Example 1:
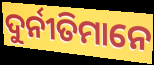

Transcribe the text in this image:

ଦୁର୍ନୀତିମାନେ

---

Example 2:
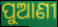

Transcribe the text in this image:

ପୁଆଣୀ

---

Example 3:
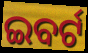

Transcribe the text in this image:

ଇବର୍ଟ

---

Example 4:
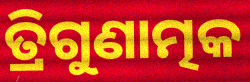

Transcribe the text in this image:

ତ୍ରିଗୁଣାତ୍ମକ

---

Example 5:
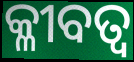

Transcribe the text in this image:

କ୍ଳୀବତ୍ବ